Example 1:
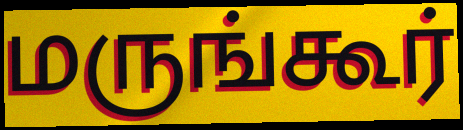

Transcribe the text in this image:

மருங்கூர்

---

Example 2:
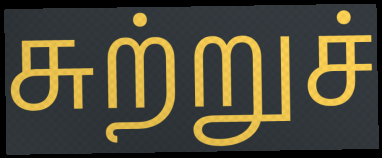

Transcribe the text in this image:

சுற்றுச்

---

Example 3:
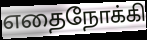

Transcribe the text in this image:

எதைநோக்கி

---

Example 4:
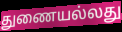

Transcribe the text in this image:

துணையல்லது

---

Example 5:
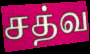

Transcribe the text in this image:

சத்வ